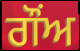
ਗੌਂਅ